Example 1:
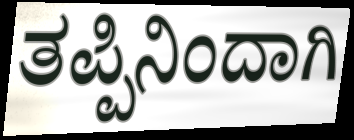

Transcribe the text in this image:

ತಪ್ಪಿನಿಂದಾಗಿ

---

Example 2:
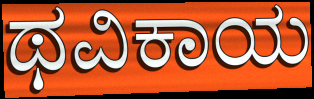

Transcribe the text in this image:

ಥವಿಕಾಯ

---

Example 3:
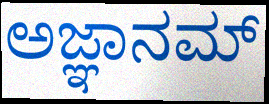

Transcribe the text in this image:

ಅಜ್ಞಾನಮ್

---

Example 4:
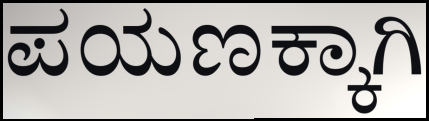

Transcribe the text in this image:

ಪಯಣಕ್ಕಾಗಿ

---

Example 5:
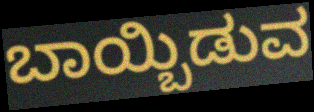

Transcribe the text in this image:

ಬಾಯ್ಬಿಡುವ